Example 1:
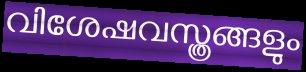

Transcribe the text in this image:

വിശേഷവസ്ത്രങ്ങളും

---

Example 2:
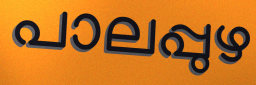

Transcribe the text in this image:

പാലപ്പുഴ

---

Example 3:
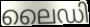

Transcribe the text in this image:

ലൈഡി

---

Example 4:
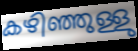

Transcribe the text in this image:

കഴിഞ്ഞുള്ളു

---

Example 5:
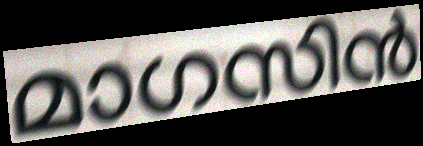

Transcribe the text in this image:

മാഗസിൻ